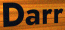
Darr